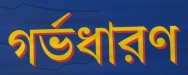
গর্ভধারণ